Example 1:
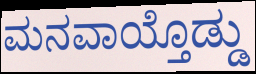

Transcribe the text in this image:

ಮನವಾಯ್ತೊಡ್ಡು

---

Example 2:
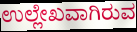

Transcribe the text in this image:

ಉಲ್ಲೇಖವಾಗಿರುವ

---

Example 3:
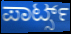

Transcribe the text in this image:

ಪಾರ್ಟ್ಸ್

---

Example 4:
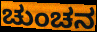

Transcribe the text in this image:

ಚುಂಚನ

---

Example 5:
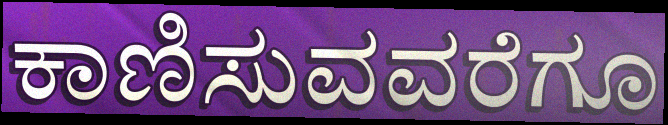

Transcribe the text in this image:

ಕಾಣಿಸುವವರೆಗೂ